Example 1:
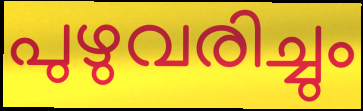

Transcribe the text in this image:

പുഴുവരിച്ചും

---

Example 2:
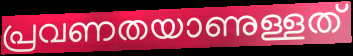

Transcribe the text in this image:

പ്രവണതയാണുള്ളത്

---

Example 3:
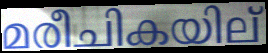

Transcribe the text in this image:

മരീചികയില്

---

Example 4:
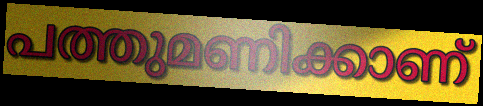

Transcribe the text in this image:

പത്തുമണിക്കാണ്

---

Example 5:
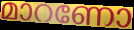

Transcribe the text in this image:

മാറണോ